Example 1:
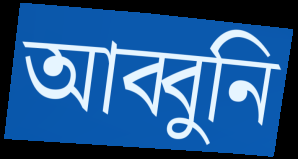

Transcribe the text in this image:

আব্বুনি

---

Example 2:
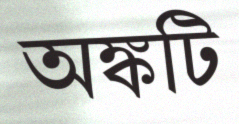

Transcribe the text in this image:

অঙ্কটি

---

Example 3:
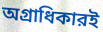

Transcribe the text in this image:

অগ্রাধিকারই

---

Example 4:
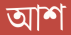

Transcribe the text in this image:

আশ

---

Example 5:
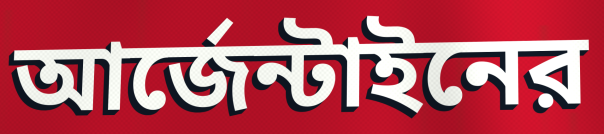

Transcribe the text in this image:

আর্জেন্টাইনের